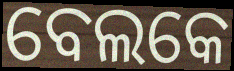
ବେଲକେ